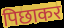
पिछाकर